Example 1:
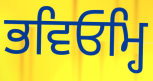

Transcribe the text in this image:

ਭਵਿਓਮ੍ਹਿ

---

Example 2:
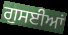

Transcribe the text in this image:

ਗੁਸਈਆਂ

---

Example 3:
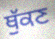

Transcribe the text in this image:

ਥੁੱਕਣ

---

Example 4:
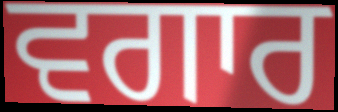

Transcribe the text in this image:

ਵਗਾਰ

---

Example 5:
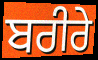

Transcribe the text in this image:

ਬਰੀਰੇ